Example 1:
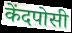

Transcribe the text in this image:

केंदपोसी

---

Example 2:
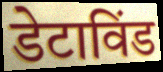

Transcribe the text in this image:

डेटाविंड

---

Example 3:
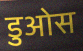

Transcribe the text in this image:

डुओस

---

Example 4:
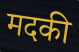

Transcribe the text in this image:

मदकी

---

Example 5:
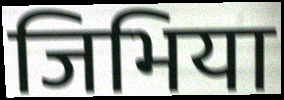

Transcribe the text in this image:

जिभिया